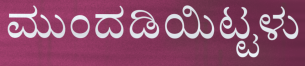
ಮುಂದಡಿಯಿಟ್ಟಳು